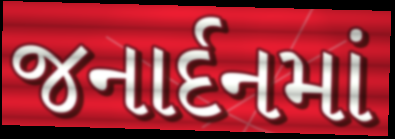
જનાર્દનમાં